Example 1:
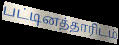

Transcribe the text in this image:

பட்டினத்தாரிடம்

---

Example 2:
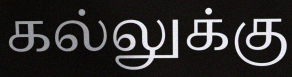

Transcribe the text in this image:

கல்லுக்கு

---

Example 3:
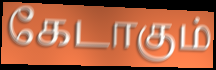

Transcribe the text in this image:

கேடாகும்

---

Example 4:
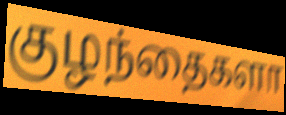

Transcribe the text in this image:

குழந்தைகளா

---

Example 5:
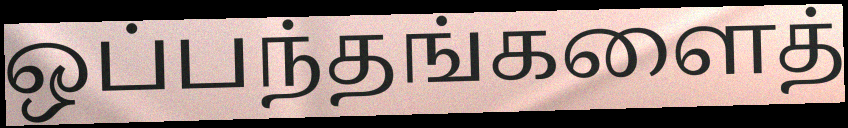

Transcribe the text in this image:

ஒப்பந்தங்களைத்